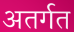
अतर्गत